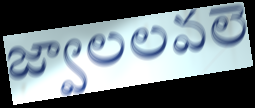
జ్వాలలవలె